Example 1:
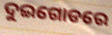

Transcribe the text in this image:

ଦୁଇଗୋଡରେ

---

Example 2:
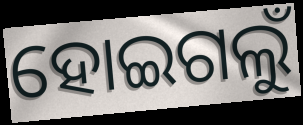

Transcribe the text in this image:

ହୋଇଗଲୁଁ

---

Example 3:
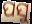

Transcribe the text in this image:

ପସୁ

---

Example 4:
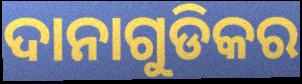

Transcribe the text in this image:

ଦାନାଗୁଡିକର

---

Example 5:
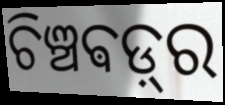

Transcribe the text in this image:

ଚିଞ୍ଚଵଡ଼୍‌ର